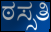
ಠಸ್ಸತಿ